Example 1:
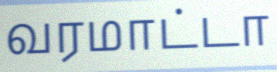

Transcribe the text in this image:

வரமாட்டா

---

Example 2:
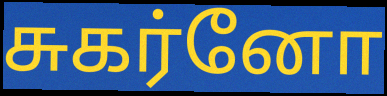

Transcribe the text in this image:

சுகர்னோ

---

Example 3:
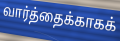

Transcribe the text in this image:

வார்த்தைக்காகக்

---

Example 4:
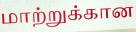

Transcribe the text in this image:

மாற்றுக்கான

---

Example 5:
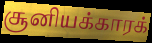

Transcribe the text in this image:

சூனியக்காரக்